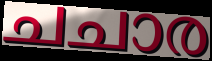
ചചാര